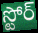
స్టోర్